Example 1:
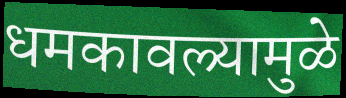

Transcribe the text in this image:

धमकावल्यामुळे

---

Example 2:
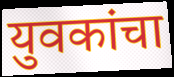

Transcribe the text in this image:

युवकांचा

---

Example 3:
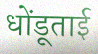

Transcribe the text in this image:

धोंडूताई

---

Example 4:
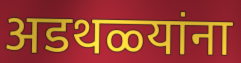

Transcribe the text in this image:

अडथळ्यांना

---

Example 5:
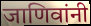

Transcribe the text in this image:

जाणिवांनी